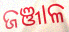
ଜଞ୍ଜାଳ